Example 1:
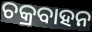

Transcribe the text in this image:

ଚକ୍ରବାହନ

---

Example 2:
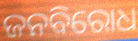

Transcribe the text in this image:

ଜନବିରୋଧ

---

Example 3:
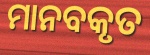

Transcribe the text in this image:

ମାନବକୃତ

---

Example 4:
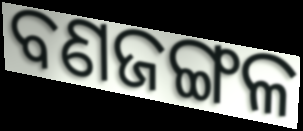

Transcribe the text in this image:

ବଣଜଙ୍ଗଳ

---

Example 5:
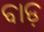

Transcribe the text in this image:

ବାଡ଼